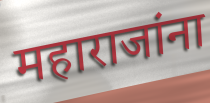
महाराजांना